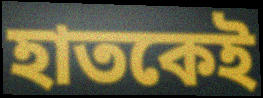
হাতকেই